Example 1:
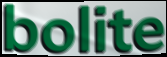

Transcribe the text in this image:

bolite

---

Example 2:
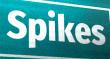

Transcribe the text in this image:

Spikes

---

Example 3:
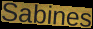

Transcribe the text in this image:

Sabines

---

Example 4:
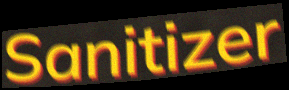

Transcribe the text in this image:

Sanitizer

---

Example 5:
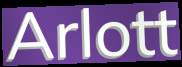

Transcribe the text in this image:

Arlott